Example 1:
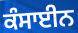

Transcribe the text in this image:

ਕੰਸਾਈਨ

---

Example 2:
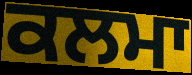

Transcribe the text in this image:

ਕਲਮਾ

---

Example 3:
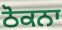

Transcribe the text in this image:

ਠੋਕਨਾ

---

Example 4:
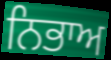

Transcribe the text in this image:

ਨਿਭਾਅ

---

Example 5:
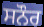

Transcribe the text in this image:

ਸਨੌਰ